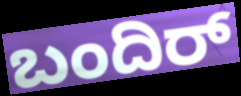
ಬಂದಿರ್